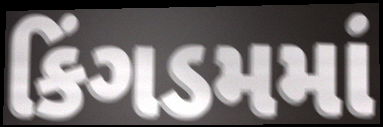
કિંગડમમાં